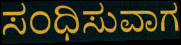
ಸಂಧಿಸುವಾಗ